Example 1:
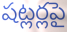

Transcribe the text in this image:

షట్లర్లపై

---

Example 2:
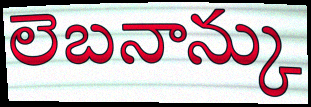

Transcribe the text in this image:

లెబనాన్కు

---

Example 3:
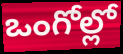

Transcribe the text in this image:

ఒంగోల్లో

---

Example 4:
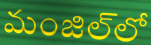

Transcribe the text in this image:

మంజిల్‌లో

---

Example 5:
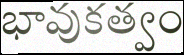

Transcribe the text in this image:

భావుకత్వం